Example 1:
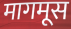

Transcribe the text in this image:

मागमूस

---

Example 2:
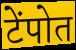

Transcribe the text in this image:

टेंपोत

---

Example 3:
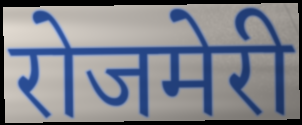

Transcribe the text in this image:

रोजमेरी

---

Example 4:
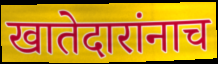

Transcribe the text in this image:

खातेदारांनाच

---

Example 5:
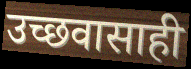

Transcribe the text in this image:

उच्छवासाही